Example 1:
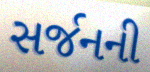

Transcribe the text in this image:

સર્જનની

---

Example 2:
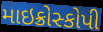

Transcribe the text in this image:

માઇક્રોસ્કોપી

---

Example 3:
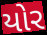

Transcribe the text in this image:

યોર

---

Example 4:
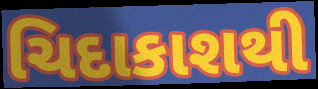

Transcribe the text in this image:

ચિદાકાશથી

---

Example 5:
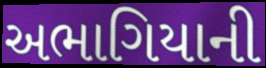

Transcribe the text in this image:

અભાગિયાની